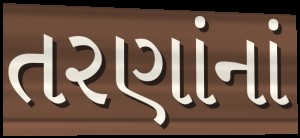
તરણાંનાં